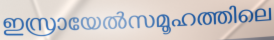
ഇസ്രായേൽസമൂഹത്തിലെ